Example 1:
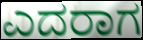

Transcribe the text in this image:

ಎದರಾಗ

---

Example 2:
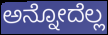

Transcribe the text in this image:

ಅನ್ನೋದೆಲ್ಲ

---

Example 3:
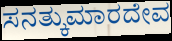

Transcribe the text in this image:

ಸನತ್ಕುಮಾರದೇವ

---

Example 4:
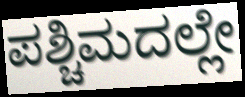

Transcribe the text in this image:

ಪಶ್ಚಿಮದಲ್ಲೇ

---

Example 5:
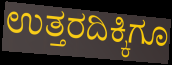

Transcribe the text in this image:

ಉತ್ತರದಿಕ್ಕಿಗೂ